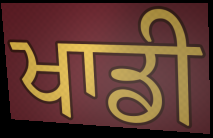
ਖਾਡੀ